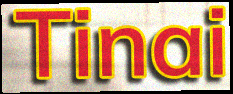
Tinai